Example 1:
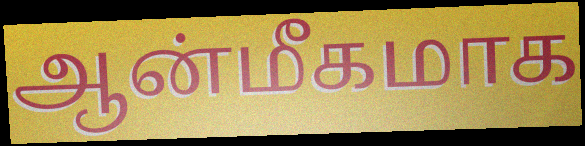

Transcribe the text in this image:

ஆன்மீகமாக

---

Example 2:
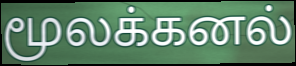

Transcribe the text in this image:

மூலக்கனல்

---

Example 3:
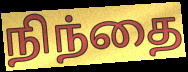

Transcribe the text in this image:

நிந்தை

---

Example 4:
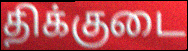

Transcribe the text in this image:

திக்குடை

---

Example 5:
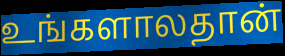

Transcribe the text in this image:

உங்களாலதான்